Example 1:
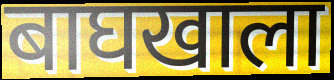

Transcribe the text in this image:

बाघखाला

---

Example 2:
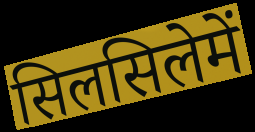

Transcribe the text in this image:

सिलसिलेमें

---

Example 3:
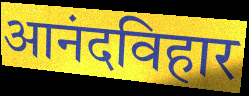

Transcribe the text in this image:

आनंदविहार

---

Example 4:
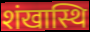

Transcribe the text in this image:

शंखास्थि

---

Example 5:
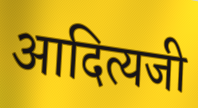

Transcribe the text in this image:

आदित्यजी